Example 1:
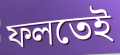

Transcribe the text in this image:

ফলতেই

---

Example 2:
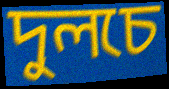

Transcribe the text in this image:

দুলচে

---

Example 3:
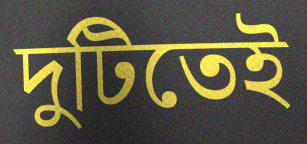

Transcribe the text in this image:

দুটিতেই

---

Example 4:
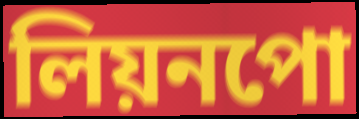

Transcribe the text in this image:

লিয়নপো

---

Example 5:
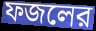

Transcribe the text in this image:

ফজলের